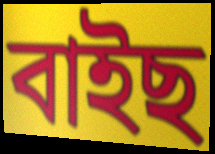
বাইছ